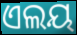
ଏଲୟ